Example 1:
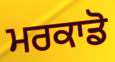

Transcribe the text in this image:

ਮਰਕਾਡੋ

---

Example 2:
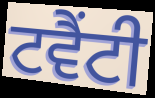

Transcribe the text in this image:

ਟਵੈਂਟੀ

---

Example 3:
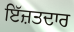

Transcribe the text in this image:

ਇੱਜ਼ਤਦਾਰ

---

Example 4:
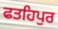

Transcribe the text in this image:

ਫਤਹਿਪੁਰ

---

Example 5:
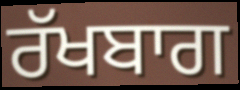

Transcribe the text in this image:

ਰੱਖਬਾਗ